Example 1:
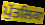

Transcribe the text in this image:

ਪੁੱਤਲਿਕਾ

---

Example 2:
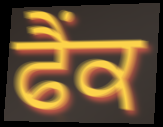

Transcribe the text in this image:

ਫੈਂਕ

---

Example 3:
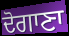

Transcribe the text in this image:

ਦੋਗਾਣਾ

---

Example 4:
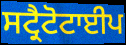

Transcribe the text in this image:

ਸਟ੍ਰੈਟੋਟਾਈਪ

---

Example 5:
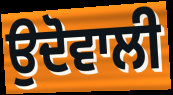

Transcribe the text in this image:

ਉਦੋਵਾਲੀ